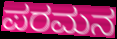
ಪರಮನ